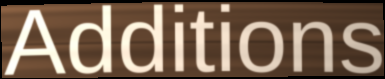
Additions